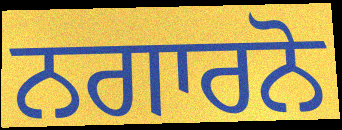
ਨਗਾਰਨੋ